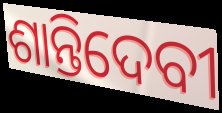
ଶାନ୍ତିଦେବୀ